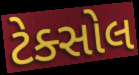
ટેક્સોલ